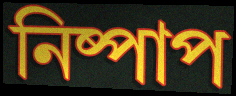
নিষ্পাপ